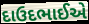
દાઉદભાઈએ